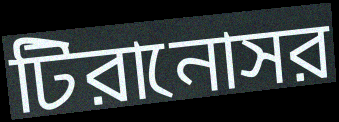
টিরানোসর